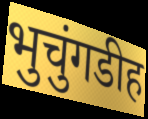
भुचुंगडीह